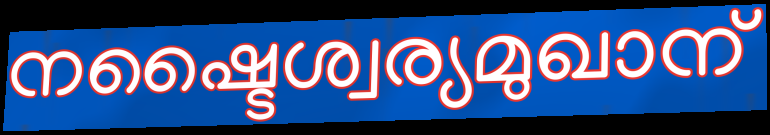
നഷ്ടൈശ്വര്യമുഖാന്